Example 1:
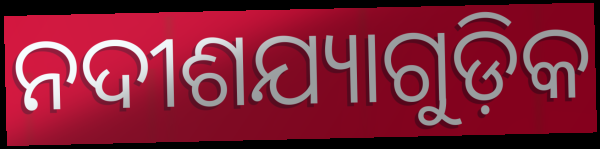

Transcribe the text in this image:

ନଦୀଶଯ୍ୟାଗୁଡ଼ିକ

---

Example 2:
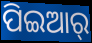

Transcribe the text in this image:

ପିଇଆର୍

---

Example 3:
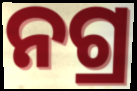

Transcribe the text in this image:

ନଗ୍ର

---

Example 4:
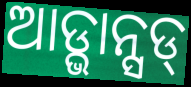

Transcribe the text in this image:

ଆଡ୍ଭାନ୍ସଡ୍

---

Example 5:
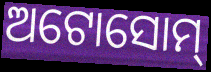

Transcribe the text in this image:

ଅଟୋସୋମ୍